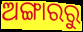
ଅଙ୍ଗାରରୁ